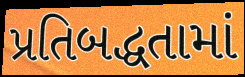
પ્રતિબદ્ધતામાં